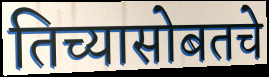
तिच्यासोबतचे